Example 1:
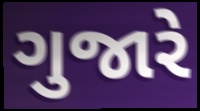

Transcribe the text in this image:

ગુજારે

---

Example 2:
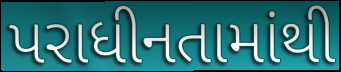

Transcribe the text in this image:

પરાધીનતામાંથી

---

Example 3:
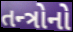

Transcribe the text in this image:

તન્ત્રોનો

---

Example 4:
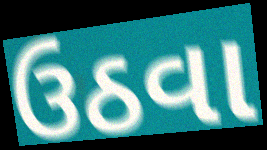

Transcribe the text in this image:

ઉઠવા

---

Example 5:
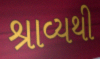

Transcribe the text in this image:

શ્રાવ્યથી